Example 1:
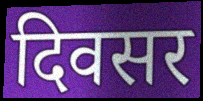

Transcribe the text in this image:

दिवसर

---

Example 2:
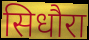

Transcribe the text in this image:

सिधौरा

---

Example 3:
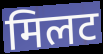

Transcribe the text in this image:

मिलट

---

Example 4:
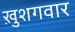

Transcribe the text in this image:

ख़ुशगवार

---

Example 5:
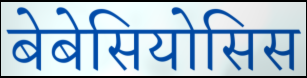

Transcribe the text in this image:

बेबेसियोसिस